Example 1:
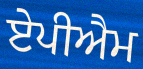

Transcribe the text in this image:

ਏਪੀਐਮ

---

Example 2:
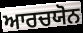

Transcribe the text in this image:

ਆਰਚਯੋਨ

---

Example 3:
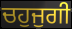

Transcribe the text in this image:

ਚਹੁਜੁਗੀ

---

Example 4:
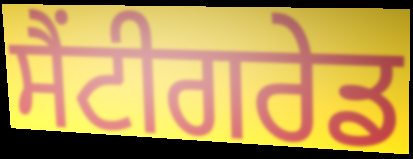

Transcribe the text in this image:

ਸੈਂਟੀਗਰੇਡ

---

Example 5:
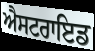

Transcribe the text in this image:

ਐਸਟਰਾਇਡ